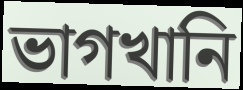
ভাগখানি